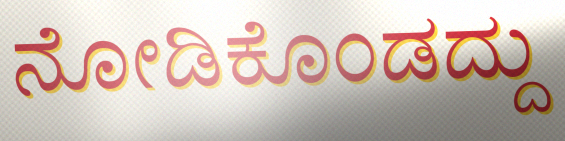
ನೋಡಿಕೊಂಡದ್ದು